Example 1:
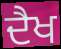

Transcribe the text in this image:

ਦੈਖ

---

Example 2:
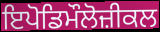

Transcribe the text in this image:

ਇਪੋਡਿਮੌਲੋਜ਼ੀਕਲ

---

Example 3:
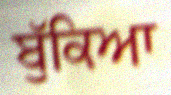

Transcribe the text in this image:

ਬੁੱਕਿਆ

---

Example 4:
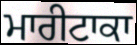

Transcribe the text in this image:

ਮਾਰੀਟਾਕਾ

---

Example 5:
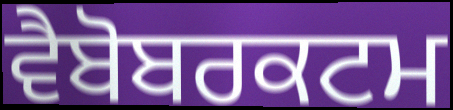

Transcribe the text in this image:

ਵੈਬੋਬਰਕਟਮ